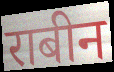
राबीन